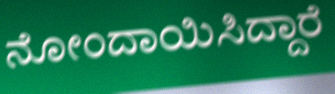
ನೋಂದಾಯಿಸಿದ್ದಾರೆ